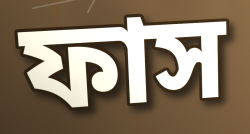
ফাস